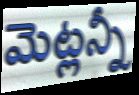
మెట్లన్నీ